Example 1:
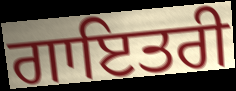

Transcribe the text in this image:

ਗਾਇਤਰੀ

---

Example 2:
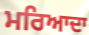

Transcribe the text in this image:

ਮਰਿਆਦਾ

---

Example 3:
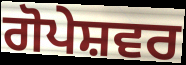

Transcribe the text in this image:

ਗੋਪੇਸ਼ਵਰ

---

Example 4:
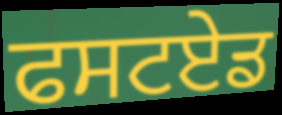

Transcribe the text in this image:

ਫਸਟਏਡ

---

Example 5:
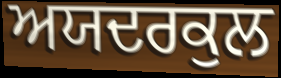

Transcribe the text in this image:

ਅਯਦਰਕੁਲ